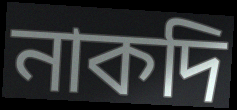
নাকদি